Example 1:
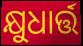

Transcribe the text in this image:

କ୍ଷୁଧାର୍ତ୍ତ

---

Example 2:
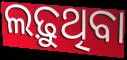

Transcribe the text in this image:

ଲଢ଼ୁଥିବା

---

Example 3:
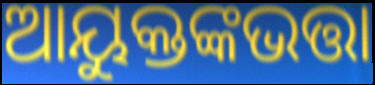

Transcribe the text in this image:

ଆୟୁକ୍ତଙ୍କଭତ୍ତା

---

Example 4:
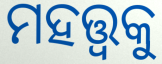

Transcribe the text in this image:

ମହତ୍ତ୍ଵକୁ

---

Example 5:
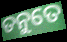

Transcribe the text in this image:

ତନୁତେ